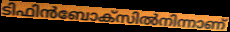
ടിഫിൻബോക്സിൽനിന്നാണ്